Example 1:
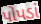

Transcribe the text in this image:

પોપડાં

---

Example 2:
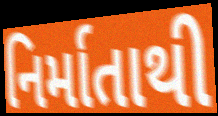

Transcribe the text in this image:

નિર્માતાથી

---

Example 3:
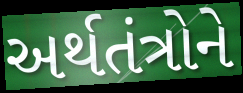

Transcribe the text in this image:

અર્થતંત્રોને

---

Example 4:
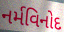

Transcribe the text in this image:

નર્મવિનોદ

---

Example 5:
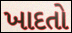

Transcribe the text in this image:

ખાદતો